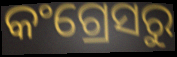
କଂଗ୍ରେସରୁ